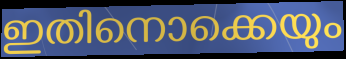
ഇതിനൊക്കെയും